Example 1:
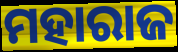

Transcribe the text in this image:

ମହାରାଜ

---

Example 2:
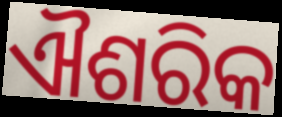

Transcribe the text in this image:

ଐଶରିକ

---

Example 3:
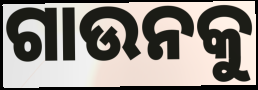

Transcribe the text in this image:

ଗାଉନକୁ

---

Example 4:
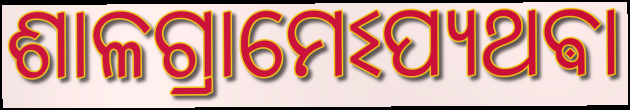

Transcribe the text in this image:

ଶାଳଗ୍ରାମେଽପ୍ଯଥଵା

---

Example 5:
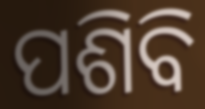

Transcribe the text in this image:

ପଶିବି